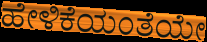
ಹೇಳಿಕೆಯಂತೆಯೇ